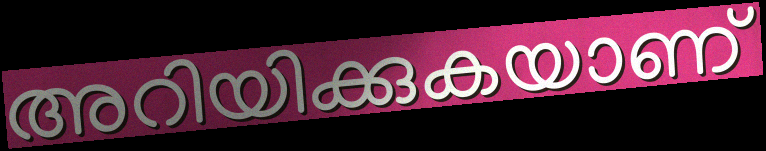
അറിയിക്കുകയാണ്